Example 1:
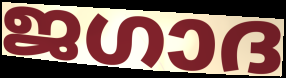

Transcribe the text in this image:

ജഗാദ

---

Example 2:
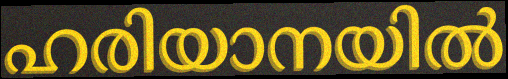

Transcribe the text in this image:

ഹരിയാനയിൽ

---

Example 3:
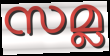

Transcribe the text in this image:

സമ്ല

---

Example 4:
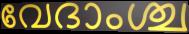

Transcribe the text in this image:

വേദാംശ്ച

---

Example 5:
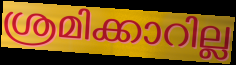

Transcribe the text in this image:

ശ്രമിക്കാറില്ല